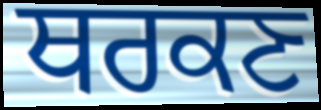
ਥਰਕਣ